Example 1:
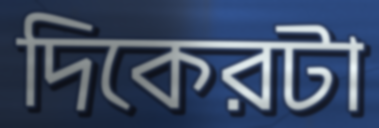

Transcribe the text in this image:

দিকেরটা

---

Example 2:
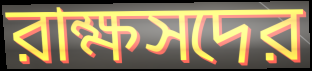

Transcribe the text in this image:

রাক্ষসদের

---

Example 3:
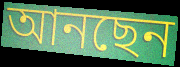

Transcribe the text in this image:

আনছেন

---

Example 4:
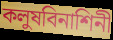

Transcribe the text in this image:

কলুষবিনাশিনী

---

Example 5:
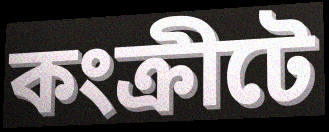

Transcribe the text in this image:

কংক্রীটে